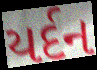
યર્દન